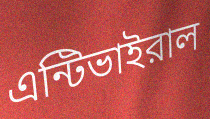
এন্টিভাইরাল